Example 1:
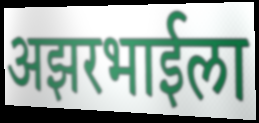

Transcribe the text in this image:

अझरभाईला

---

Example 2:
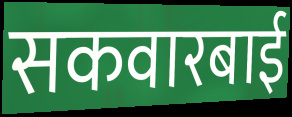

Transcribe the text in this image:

सकवारबाई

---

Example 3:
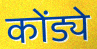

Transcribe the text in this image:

कोंड्ये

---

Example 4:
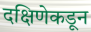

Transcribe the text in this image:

दक्षिणेकडून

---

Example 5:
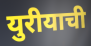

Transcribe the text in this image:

युरीयाची